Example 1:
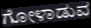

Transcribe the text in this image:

ಗೋಳಾಡುವ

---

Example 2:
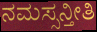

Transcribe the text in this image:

ನಮಸ್ಸನ್ತೀತಿ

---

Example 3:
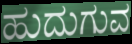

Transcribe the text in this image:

ಹುದುಗುವ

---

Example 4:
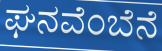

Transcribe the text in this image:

ಘನವೆಂಬೆನೆ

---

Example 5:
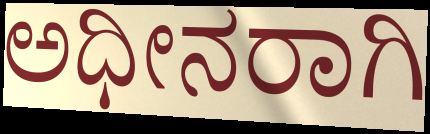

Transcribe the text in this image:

ಅಧೀನರಾಗಿ